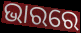
ଭାରରେ